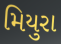
મિયુરા